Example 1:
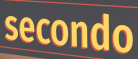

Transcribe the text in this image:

secondo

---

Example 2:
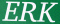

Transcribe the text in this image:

ERK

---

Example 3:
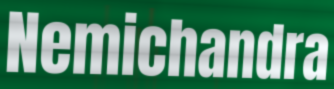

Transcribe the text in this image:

Nemichandra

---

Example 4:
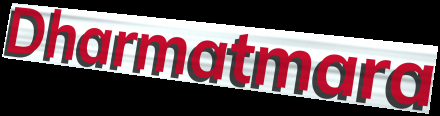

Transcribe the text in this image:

Dharmatmara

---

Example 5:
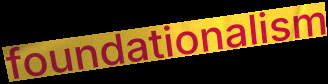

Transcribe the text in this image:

foundationalism